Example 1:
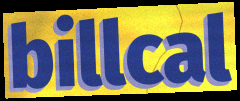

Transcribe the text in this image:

billcal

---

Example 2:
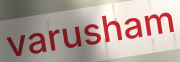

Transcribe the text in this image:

varusham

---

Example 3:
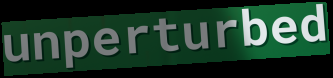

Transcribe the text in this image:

unperturbed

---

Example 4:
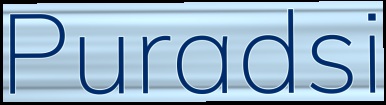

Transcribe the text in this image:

Puradsi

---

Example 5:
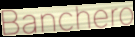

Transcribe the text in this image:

Banchero